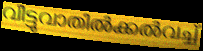
വീട്ടുവാതിൽക്കൽവച്ച്